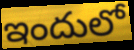
ఇందులో